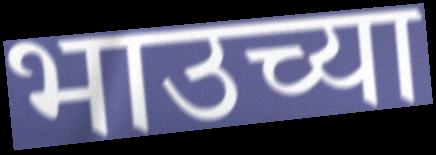
भाउच्या